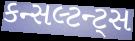
કન્સલ્ટન્ટ્સ